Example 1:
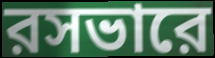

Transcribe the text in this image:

রসভারে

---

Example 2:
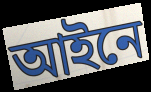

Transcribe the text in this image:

আইনে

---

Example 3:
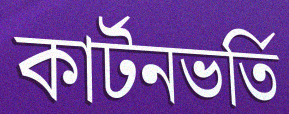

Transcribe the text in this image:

কার্টনভর্তি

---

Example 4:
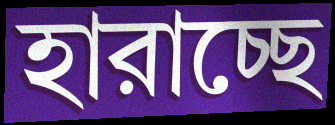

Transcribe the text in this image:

হারাচ্ছে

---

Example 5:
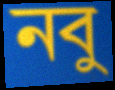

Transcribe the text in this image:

নবু